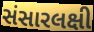
સંસારલક્ષી